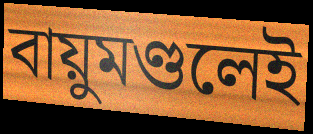
বায়ুমণ্ডলেই